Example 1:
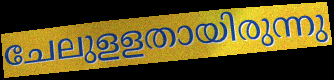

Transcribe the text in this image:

ചേലുളളതായിരുന്നു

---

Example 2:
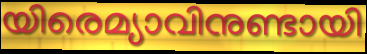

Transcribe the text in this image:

യിരെമ്യാവിനുണ്ടായി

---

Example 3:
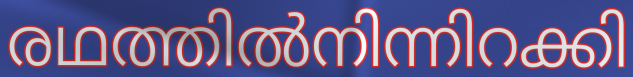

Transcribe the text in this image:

രഥത്തിൽനിന്നിറക്കി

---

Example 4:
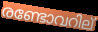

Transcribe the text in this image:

രണ്ടോവറില്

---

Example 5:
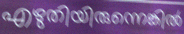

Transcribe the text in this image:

എഴുതിയിരുന്നെങ്കിൽ